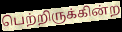
பெற்றிருக்கின்ற